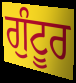
ਗੁੰਟੂਰ